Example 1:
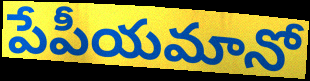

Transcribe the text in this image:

పేపీయమానో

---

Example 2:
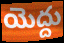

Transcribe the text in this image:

యెద్దు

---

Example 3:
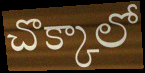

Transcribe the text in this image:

చొక్కాలో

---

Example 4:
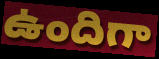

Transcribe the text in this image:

ఉందిగా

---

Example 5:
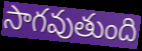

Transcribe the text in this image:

సాగవుతుంది